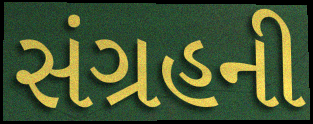
સંગ્રહની